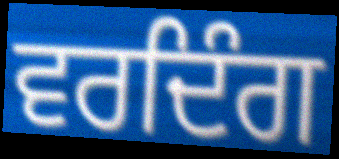
ਵਰਦਿੰਗ